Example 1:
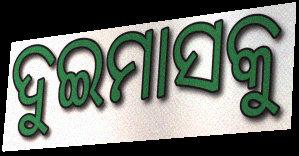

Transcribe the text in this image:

ଦୁଇମାସକୁ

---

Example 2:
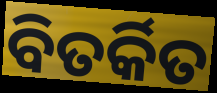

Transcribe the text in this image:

ବିତର୍କିତ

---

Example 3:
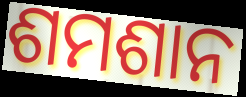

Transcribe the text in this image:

ଶମଶାନ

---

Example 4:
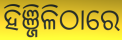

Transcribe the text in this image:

ହିଞ୍ଜିଳିଠାରେ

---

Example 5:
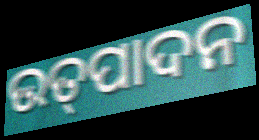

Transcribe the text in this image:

ଉତ୍‍ପାଦନ